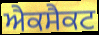
ਐਕਸੈਕਟ